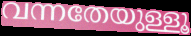
വന്നതേയുള്ളൂ